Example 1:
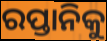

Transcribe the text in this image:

ରପ୍ତାନିକୁ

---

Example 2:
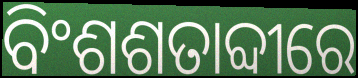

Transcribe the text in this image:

ବିଂଶଶତାବ୍ଦୀରେ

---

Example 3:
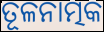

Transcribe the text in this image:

ତୂଳନାତ୍ମକ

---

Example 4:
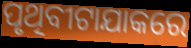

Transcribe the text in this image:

ପୃଥିବୀଟାଯାକରେ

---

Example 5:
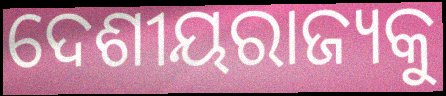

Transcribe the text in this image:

ଦେଶୀୟରାଜ୍ୟକୁ